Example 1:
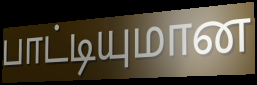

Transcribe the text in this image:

பாட்டியுமான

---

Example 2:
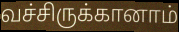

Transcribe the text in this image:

வச்சிருக்கானாம்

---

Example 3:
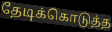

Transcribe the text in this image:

தேடிக்கொடுத்த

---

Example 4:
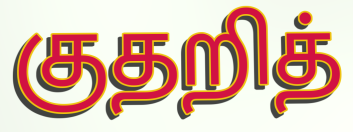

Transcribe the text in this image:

குதறித்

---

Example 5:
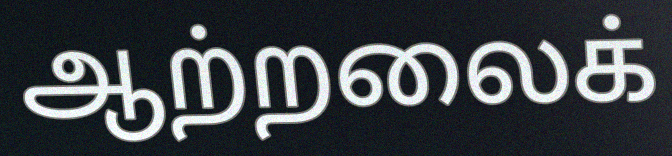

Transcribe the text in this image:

ஆற்றலைக்